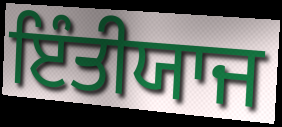
ਇੰਤੀਯਾਜ